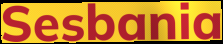
Sesbania